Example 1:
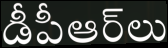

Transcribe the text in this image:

డీపీఆర్‌లు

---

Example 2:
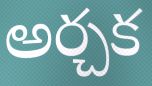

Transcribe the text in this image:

అర్చక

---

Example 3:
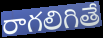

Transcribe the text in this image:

రాగలిగితే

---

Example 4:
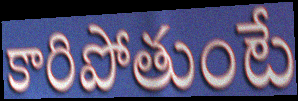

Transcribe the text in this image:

కారిపోతుంటే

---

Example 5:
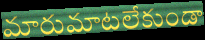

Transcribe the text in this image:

మారుమాటలేకుండా